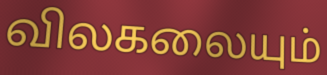
விலகலையும்